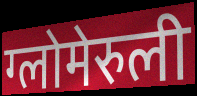
ग्लोमेरुली